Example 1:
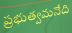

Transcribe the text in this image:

ప్రభుత్వమనేది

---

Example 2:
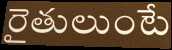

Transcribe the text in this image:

రైతులుంటే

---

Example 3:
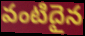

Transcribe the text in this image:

వంటిదైన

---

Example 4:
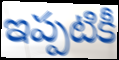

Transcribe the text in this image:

ఇప్పటికీ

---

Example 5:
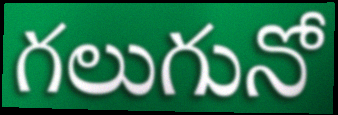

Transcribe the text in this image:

గలుగునో